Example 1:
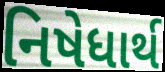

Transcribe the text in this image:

નિષેધાર્થ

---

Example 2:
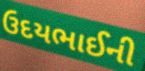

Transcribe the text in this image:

ઉદયભાઈની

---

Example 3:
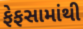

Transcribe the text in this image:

ફેફસામાંથી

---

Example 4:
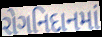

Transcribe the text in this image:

રોગનિદાનમાં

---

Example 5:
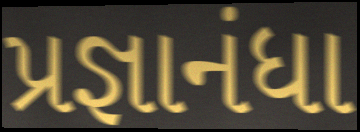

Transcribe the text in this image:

પ્રજ્ઞાનંધા